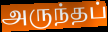
அருந்தப்